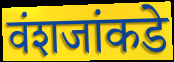
वंशजांकडे